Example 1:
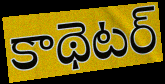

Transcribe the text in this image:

కాథెటర్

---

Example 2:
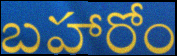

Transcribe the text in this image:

బహారోం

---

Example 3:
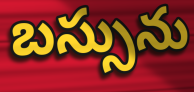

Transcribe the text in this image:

బస్సును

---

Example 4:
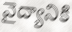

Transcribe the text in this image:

వైద్యానికి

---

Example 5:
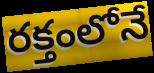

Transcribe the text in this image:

రక్తంలోనే